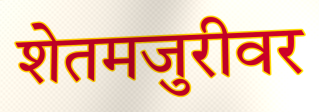
शेतमजुरीवर